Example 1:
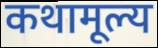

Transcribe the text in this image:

कथामूल्य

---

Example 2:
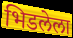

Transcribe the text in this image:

भिडलेला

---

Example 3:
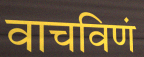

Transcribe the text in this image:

वाचविणं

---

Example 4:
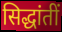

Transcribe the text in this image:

सिद्धांतीं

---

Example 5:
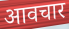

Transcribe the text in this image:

आवचार